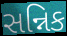
સન્નિક